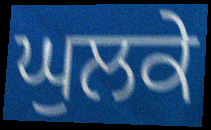
ਘੁਲਕੇ